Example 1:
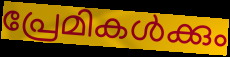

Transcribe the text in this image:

പ്രേമികൾക്കും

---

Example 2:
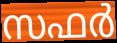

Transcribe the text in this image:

സഫർ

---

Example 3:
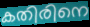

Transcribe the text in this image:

കതിരിനെ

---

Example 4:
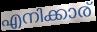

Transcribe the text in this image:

എനിക്കാര്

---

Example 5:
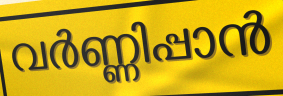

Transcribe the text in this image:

വർണ്ണിപ്പാൻ